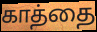
காத்தை